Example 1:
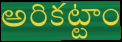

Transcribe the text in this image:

అరికట్టాం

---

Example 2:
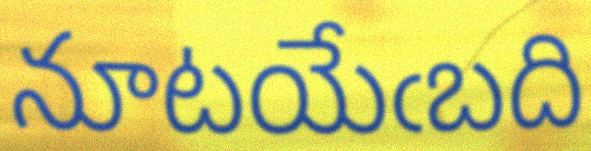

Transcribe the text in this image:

నూటయేఁబది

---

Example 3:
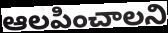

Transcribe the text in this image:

ఆలపించాలని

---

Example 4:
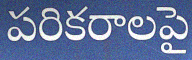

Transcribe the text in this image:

పరికరాలపై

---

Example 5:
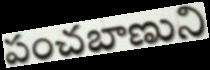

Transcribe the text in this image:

పంచబాణుని